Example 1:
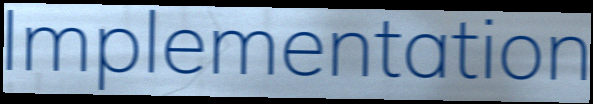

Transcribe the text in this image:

Implementation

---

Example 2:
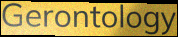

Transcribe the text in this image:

Gerontology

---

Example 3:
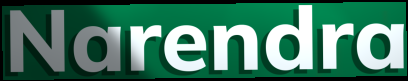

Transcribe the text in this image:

Narendra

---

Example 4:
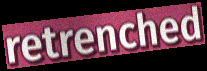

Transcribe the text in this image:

retrenched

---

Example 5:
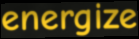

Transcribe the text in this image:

energize